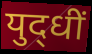
युद्धीं